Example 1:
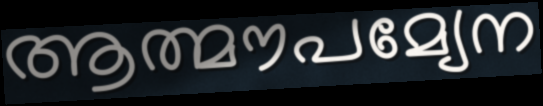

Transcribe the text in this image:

ആത്മൗപമ്യേന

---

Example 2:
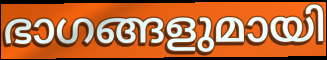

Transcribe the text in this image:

ഭാഗങ്ങളുമായി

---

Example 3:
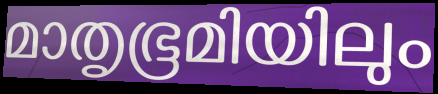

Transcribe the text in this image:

മാതൃഭൂമിയിലും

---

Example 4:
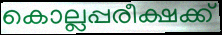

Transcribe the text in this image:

കൊല്ലപ്പരീക്ഷക്ക്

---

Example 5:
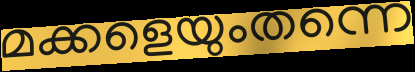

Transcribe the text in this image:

മക്കളെയുംതന്നെ